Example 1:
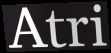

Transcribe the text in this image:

Atri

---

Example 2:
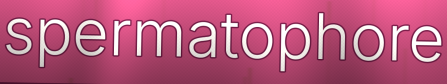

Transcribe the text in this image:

spermatophore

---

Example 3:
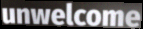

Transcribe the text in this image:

unwelcome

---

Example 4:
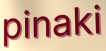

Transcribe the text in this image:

pinaki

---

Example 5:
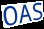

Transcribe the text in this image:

OAS